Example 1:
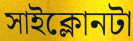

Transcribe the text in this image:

সাইক্লোনটা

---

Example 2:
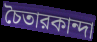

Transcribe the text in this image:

চৈতারকান্দা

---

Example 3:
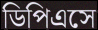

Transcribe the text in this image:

ডিপিএসে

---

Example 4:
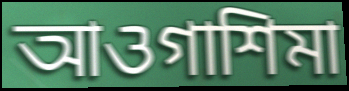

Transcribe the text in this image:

আওগাশিমা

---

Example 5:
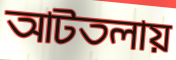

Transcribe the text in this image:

আটতলায়